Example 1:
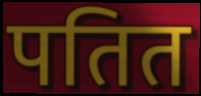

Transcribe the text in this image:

पतित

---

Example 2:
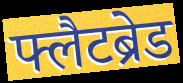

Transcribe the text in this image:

फ्लैटब्रेड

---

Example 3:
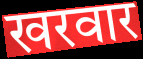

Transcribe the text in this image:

खरवार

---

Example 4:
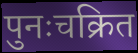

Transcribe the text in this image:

पुनःचक्रित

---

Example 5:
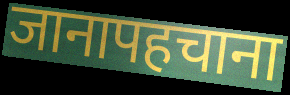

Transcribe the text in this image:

जानापहचाना